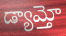
డ్యామ్తో